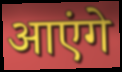
आएंगे